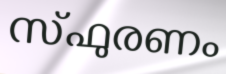
സ്ഫുരണം